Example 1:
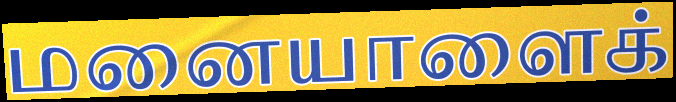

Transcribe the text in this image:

மனையாளைக்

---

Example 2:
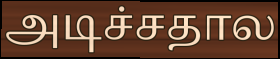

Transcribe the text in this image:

அடிச்சதால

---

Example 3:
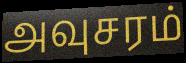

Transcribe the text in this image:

அவுசரம்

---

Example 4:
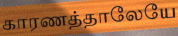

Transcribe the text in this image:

காரணத்தாலேயே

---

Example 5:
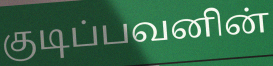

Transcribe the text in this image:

குடிப்பவனின்